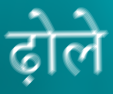
ढ़ोले